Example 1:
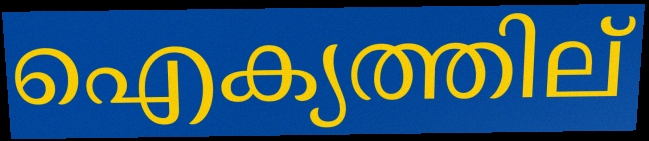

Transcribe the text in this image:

ഐക്യത്തില്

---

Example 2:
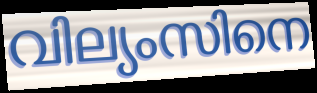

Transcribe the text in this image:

വില്യംസിനെ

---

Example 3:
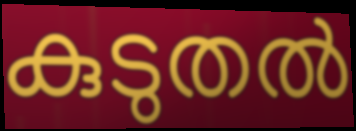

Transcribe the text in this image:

കുടുതൽ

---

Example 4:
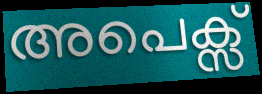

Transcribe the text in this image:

അപെക്സ്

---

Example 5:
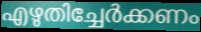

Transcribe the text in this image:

എഴുതിച്ചേർക്കണം